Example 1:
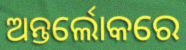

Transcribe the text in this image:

ଅନ୍ତର୍ଲୋକରେ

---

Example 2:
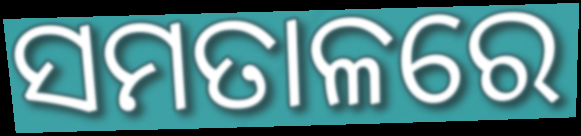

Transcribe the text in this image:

ସମତାଳରେ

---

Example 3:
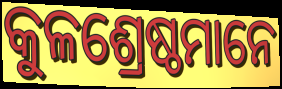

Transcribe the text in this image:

କୁଳଶ୍ରେଷ୍ଠମାନେ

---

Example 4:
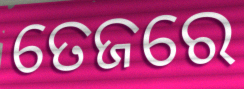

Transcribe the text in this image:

ତେଜରେ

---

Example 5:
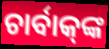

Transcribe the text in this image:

ଚାର୍ବାକ୍‌ଙ୍କ